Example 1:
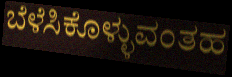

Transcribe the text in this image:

ಬೆಳೆಸಿಕೊಳ್ಳುವಂತಹ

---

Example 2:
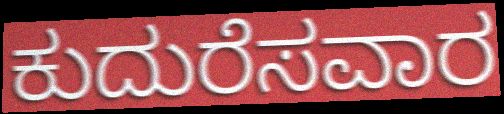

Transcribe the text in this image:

ಕುದುರೆಸವಾರ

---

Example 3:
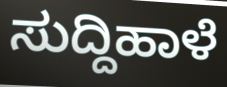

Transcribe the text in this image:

ಸುದ್ದಿಹಾಳೆ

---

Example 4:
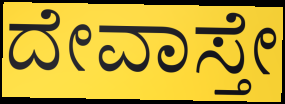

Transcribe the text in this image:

ದೇವಾಸ್ತೇ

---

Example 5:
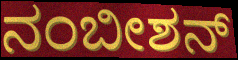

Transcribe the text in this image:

ನಂಬೀಶನ್